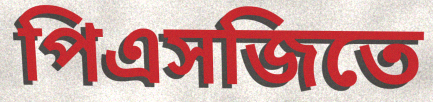
পিএসজিতে